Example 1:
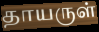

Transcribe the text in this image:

தாயருள்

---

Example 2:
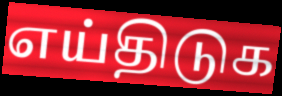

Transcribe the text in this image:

எய்திடுக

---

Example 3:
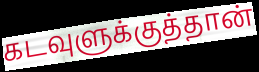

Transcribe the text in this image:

கடவுளுக்குத்தான்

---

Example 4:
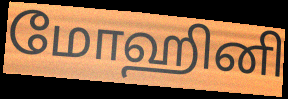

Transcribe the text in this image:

மோஹினி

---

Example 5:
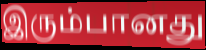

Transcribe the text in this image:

இரும்பானது